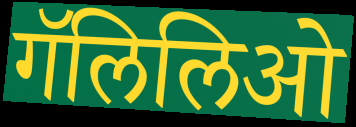
गॅलिलिओ